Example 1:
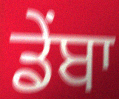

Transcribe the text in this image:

ਡੇਂਬਾ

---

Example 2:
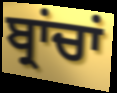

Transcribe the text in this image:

ਬ੍ਰਾਂਚਾਂ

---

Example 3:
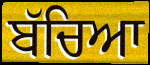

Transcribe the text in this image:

ਬੱਚਿਆ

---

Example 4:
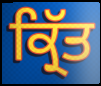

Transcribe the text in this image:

ਕ੍ਰਿੱਤ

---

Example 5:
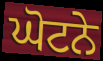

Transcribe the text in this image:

ਘੋਟਨੇ